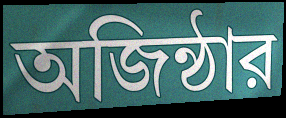
অজিন্ঠার